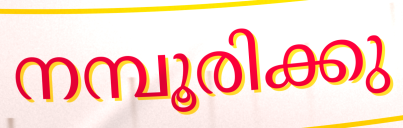
നമ്പൂരിക്കു